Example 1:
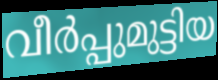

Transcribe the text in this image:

വീർപ്പുമുട്ടിയ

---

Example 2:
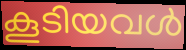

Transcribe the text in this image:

കൂടിയവൾ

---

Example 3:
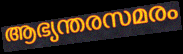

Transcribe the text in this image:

ആഭ്യന്തരസമരം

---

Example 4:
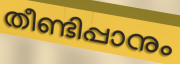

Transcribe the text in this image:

തീണ്ടിപ്പാനും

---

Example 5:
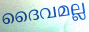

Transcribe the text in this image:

ദൈവമല്ല